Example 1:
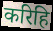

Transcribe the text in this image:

करिहि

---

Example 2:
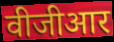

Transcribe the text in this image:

वीजीआर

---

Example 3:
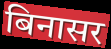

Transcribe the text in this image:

बिनासर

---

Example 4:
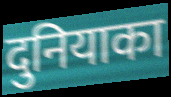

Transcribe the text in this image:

दुनियाका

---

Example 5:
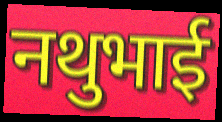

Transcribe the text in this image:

नथुभाई